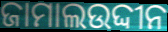
ଜାମାଲଉଦ୍ଦୀନ